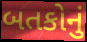
બતકોનું